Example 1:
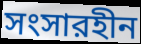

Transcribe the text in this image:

সংসারহীন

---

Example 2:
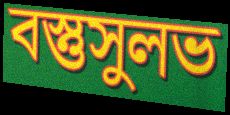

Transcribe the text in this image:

বস্তুসুলভ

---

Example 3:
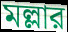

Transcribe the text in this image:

মল্লার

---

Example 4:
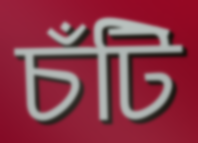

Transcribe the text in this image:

চঁটি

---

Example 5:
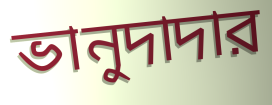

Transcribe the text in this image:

ভানুদাদার